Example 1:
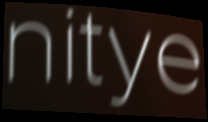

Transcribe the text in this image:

nitye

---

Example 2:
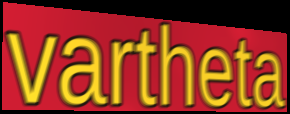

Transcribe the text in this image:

vartheta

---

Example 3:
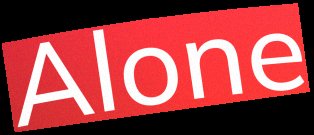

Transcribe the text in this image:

Alone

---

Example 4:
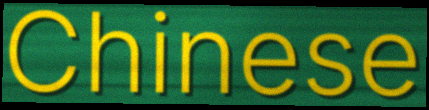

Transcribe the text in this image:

Chinese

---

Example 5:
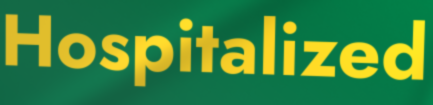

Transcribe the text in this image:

Hospitalized